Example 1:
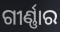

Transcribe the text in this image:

ଗୀର୍ଣ୍ଣାର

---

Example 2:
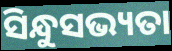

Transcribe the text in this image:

ସିନ୍ଧୁସଭ୍ୟତା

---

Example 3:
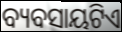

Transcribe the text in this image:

ବ୍ୟବସାୟଟିଏ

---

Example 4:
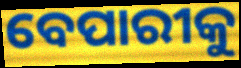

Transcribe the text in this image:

ବେପାରୀକୁ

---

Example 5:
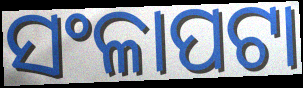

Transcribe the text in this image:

ସଂଳାପଟା